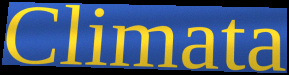
Climata